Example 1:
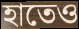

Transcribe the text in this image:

হাতেও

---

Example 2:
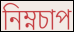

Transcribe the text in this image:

নিম্নচাপ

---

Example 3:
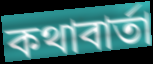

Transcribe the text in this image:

কথাবার্তা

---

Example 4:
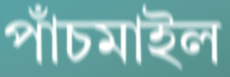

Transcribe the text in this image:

পাঁচমাইল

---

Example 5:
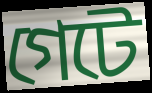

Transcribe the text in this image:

গেটে